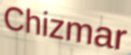
Chizmar